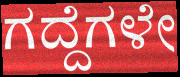
ಗದ್ದೆಗಳೇ